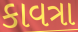
કાવત્રા